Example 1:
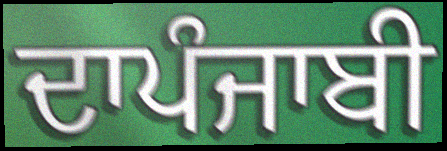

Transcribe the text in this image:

ਦਾਪੰਜਾਬੀ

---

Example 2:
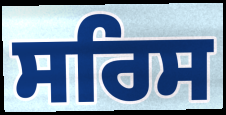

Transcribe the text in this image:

ਸਰਿਸ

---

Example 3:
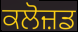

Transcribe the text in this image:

ਕਲੋਜ਼ਡ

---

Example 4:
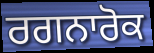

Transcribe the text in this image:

ਰਗਨਾਰੋਕ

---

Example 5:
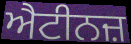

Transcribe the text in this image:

ਐਟੀਨਜ਼